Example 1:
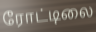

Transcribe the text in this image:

ரோட்டிலை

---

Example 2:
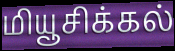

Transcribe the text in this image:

மியூசிக்கல்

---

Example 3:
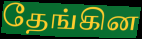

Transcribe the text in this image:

தேங்கின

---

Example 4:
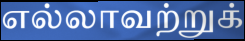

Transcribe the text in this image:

எல்லாவற்றுக்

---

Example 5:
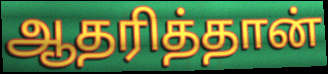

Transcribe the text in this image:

ஆதரித்தான்